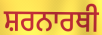
ਸ਼ਰਨਾਰਥੀ